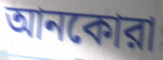
আনকোরা